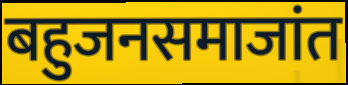
बहुजनसमाजांत